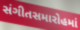
સંગીતસમારોહમાં